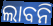
ଲାବନି